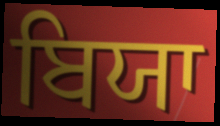
ਬਿਯਾ